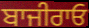
ਬਾਜੀਰਾਓ